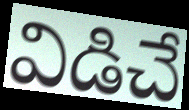
విడిచే